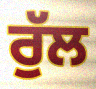
ਰੁੱਲ